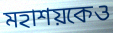
মহাশয়কেও